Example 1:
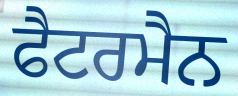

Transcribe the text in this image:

ਫੈਟਰਮੈਨ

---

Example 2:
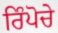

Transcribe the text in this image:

ਰਿੰਪੋਚੇ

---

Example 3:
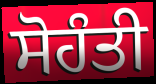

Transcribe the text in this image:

ਸੋਹੰਤੀ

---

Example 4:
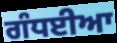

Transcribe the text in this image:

ਗੰਧਈਆ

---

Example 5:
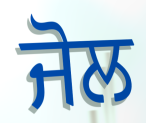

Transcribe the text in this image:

ਜੋਲ